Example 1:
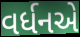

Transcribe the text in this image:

વર્ધનએ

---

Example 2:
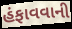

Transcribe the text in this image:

હંફાવવાની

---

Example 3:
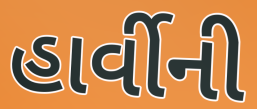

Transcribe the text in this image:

હાર્વીની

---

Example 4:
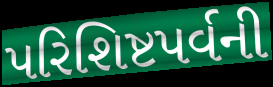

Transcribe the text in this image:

પરિશિષ્ટપર્વની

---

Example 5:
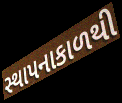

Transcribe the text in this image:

સ્થાપનાકાળથી